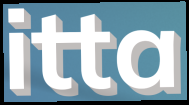
itta